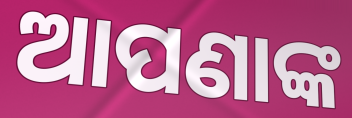
ଆପଣାଙ୍କ